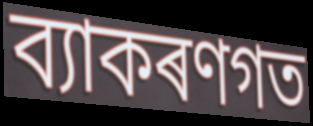
ব্যাকৰণগত